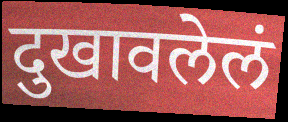
दुखावलेलं